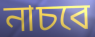
নাচবে